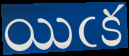
యిఁక